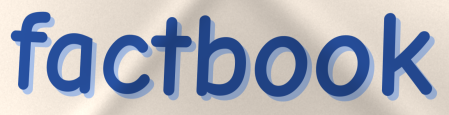
factbook